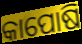
କାପୋଷି